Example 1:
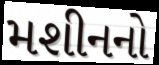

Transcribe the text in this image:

મશીનનો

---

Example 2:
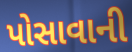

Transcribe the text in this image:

પોસાવાની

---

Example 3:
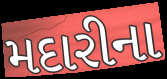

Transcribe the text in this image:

મદારીના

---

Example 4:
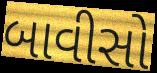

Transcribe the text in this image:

બાવીસો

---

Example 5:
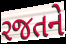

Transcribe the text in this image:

રજતને